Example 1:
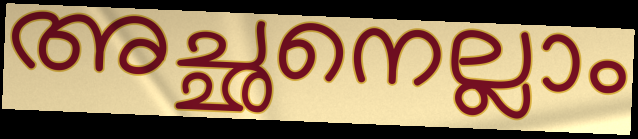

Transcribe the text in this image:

അച്ഛനെല്ലാം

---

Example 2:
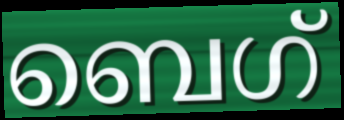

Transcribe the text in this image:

ബെഗ്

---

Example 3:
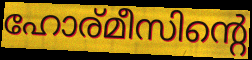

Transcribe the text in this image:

ഹോര്മീസിന്റെ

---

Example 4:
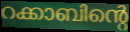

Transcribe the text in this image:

റക്കാബിന്റെ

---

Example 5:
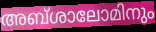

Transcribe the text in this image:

അബ്ശാലോമിനും